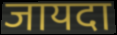
जायदा